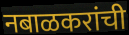
नबाळकरांची